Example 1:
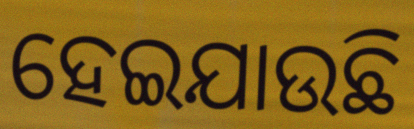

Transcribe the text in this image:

ହେଇଯାଉଛି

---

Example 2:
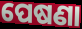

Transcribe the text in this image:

ପେଷଣା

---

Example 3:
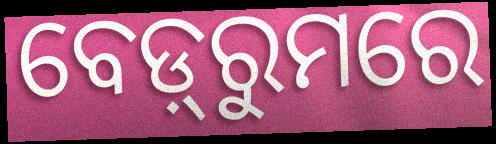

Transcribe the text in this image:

ବେଡ଼୍‌ରୁମରେ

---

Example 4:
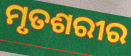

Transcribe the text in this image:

ମୃତଶରୀର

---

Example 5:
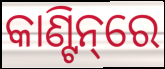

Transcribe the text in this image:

କାଣ୍ଟିନ୍‌ରେ